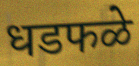
धडफळे